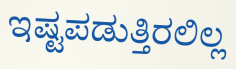
ಇಷ್ಟಪಡುತ್ತಿರಲಿಲ್ಲ